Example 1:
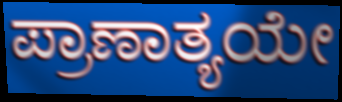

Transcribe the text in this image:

ಪ್ರಾಣಾತ್ಯಯೇ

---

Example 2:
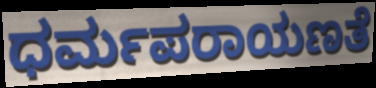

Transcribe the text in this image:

ಧರ್ಮಪರಾಯಣತೆ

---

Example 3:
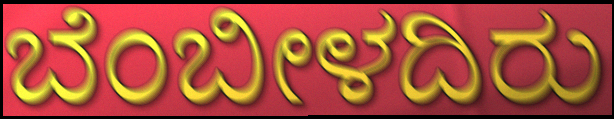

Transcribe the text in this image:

ಬೆಂಬೀಳದಿರು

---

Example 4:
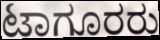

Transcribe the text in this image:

ಟಾಗೂರರು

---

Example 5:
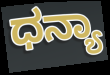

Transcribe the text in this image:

ಧನ್ಯಾ